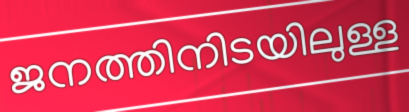
ജനത്തിനിടയിലുള്ള